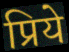
प्रिये